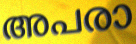
അപരാ